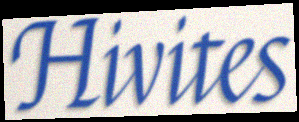
Hivites